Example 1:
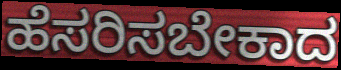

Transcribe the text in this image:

ಹೆಸರಿಸಬೇಕಾದ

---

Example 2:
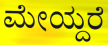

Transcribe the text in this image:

ಮೇಯ್ದರೆ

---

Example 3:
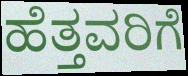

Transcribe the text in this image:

ಹೆತ್ತವರಿಗೆ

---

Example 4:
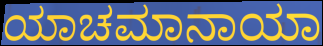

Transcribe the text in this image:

ಯಾಚಮಾನಾಯಾ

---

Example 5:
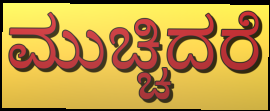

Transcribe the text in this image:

ಮುಚ್ಚಿದರೆ